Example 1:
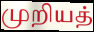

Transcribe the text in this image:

முறியத்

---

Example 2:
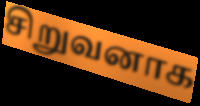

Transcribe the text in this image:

சிறுவனாக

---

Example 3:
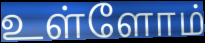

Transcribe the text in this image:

உள்ளோம்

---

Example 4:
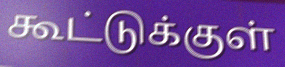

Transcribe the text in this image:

கூட்டுக்குள்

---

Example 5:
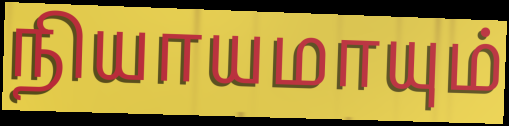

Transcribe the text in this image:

நியாயமாயும்